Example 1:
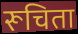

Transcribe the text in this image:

रूचिता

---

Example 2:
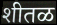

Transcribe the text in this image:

शीतळ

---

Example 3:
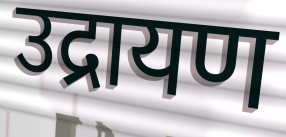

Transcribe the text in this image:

उद्रायण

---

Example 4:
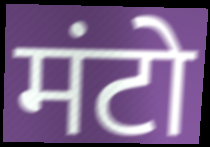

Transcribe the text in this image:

मंटो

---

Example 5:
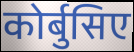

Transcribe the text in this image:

कोर्बुसिए